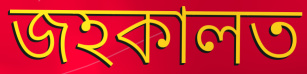
জহকালত